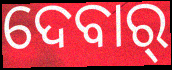
ଦେବାର୍